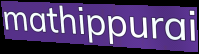
mathippurai